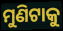
ମୁଣିଟାକୁ